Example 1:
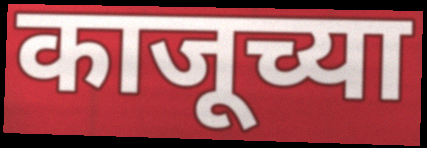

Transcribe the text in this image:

काजूच्या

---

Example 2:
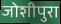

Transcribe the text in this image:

जोशीपुरा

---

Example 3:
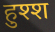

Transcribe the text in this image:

हुश्श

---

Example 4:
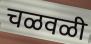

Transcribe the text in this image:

चळवळी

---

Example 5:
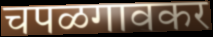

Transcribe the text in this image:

चपळगावकर